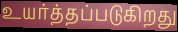
உயர்த்தப்படுகிறது